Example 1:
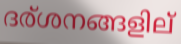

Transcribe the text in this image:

ദര്ശനങ്ങളില്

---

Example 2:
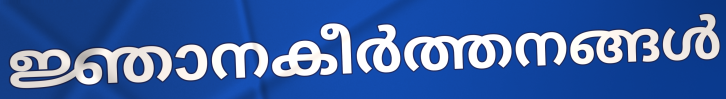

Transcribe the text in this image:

ജ്ഞാനകീർത്തനങ്ങൾ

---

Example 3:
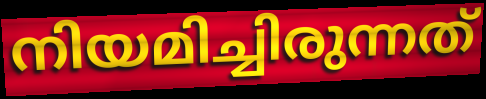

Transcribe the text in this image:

നിയമിച്ചിരുന്നത്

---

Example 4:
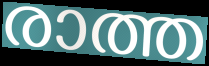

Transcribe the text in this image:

രാത്ത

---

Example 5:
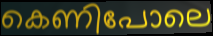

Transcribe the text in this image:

കെണിപോലെ